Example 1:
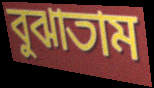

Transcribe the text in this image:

বুঝাতাম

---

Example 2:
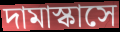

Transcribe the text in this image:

দামাস্কাসে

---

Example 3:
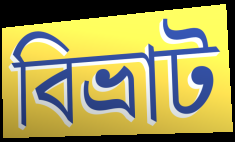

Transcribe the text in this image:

বিভ্রাট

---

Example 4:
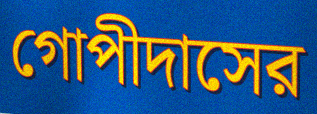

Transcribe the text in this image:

গোপীদাসের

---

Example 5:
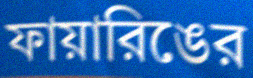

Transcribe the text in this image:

ফায়ারিঙের